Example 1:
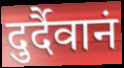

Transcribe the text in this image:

दुर्दैवानं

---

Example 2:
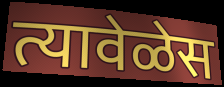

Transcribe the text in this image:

त्यावेळेस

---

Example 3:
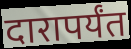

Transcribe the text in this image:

दारापर्यंत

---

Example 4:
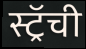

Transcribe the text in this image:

स्ट्रॅची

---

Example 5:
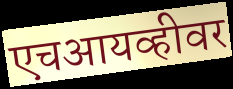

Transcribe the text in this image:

एचआयव्हीवर